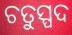
ଚତୁସ୍ପଦ